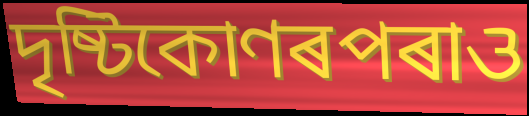
দৃষ্টিকোণৰপৰাও